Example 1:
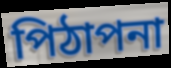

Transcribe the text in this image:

পিঠাপনা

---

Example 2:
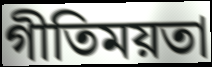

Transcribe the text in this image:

গীতিময়তা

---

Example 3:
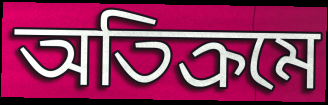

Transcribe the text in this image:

অতিক্ৰমে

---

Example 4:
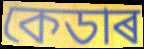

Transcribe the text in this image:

কেডাৰ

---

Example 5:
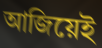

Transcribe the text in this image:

আজিয়েই